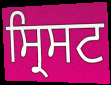
ਸ੍ਰਿਸਟ